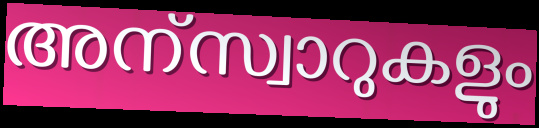
അന്സ്വാറുകളും